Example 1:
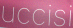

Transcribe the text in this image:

uccisi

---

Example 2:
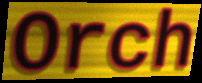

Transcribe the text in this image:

Orch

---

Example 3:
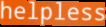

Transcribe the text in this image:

helpless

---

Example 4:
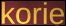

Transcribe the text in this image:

korie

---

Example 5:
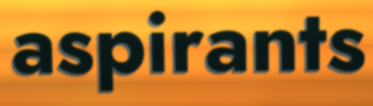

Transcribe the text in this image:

aspirants